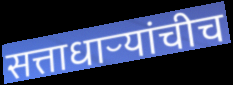
सत्ताधाऱ्यांचीच